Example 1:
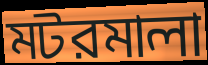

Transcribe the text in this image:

মটরমালা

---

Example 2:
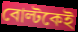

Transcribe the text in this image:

বোল্টকেই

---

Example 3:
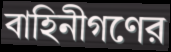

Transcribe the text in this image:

বাহিনীগণের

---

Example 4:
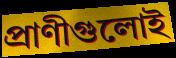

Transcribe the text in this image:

প্রাণীগুলোই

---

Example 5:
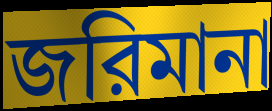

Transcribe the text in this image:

জরিমানা